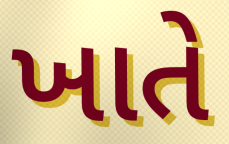
ખાતે